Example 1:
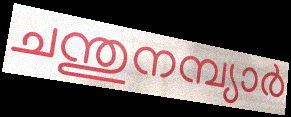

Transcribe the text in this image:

ചന്തുനമ്പ്യാർ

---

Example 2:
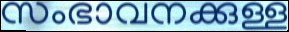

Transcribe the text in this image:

സംഭാവനക്കുള്ള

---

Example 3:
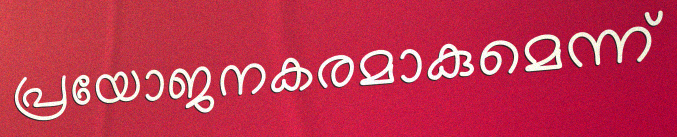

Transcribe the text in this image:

പ്രയോജനകരമാകുമെന്ന്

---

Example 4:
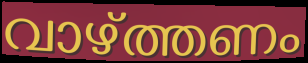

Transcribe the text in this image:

വാഴ്ത്തണം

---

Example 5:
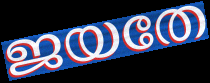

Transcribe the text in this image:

ജയതേ